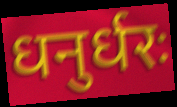
धनुर्धरः